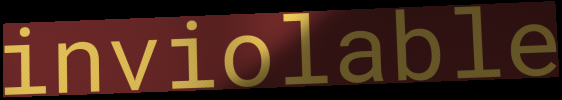
inviolable